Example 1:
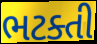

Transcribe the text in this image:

ભટક્તી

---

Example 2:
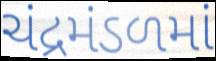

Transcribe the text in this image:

ચંદ્રમંડળમાં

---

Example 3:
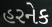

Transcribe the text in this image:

હરનેક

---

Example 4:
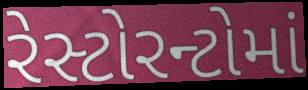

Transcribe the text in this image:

રેસ્ટોરન્ટોમાં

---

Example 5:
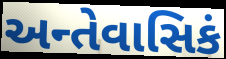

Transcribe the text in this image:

અન્તેવાસિકં